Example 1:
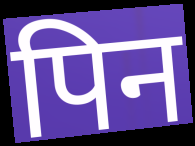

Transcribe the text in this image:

पिन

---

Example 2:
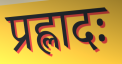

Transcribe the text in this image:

प्रह्लादः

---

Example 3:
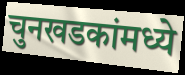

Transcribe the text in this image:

चुनखडकांमध्ये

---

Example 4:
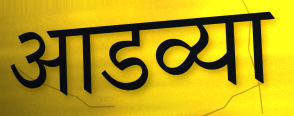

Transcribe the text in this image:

आडव्या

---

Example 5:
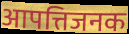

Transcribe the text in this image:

आपत्तिजनक